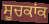
ਸੂਚਕਾਂਕ